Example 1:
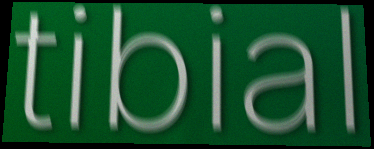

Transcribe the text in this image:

tibial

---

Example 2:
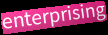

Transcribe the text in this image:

enterprising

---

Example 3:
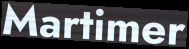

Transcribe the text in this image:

Martimer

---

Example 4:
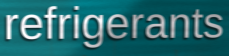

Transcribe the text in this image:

refrigerants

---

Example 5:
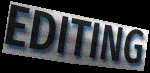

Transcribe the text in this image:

EDITING